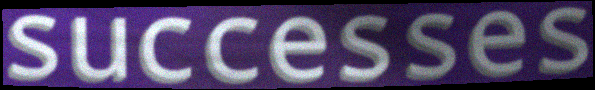
successes